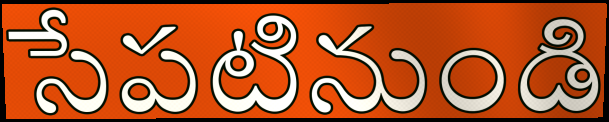
సేపటినుండి